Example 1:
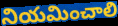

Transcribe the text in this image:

నియమించాలి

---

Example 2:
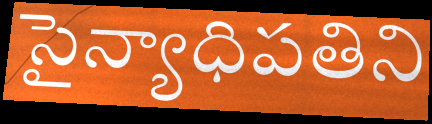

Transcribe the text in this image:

సైన్యాధిపతిని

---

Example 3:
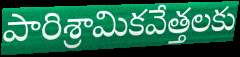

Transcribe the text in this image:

పారిశ్రామికవేత్తలకు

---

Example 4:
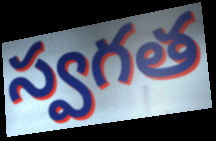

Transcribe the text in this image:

స్వగత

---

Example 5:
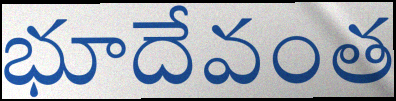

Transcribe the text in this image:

భూదేవంత